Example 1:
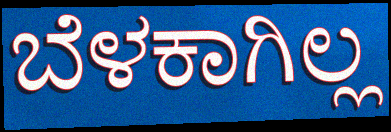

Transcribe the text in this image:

ಬೆಳಕಾಗಿಲ್ಲ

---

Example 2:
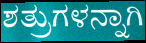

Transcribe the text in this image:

ಶತ್ರುಗಳನ್ನಾಗಿ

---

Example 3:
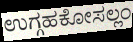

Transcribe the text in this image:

ಉಗ್ಗಹಕೋಸಲ್ಲಂ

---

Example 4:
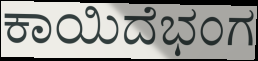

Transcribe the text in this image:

ಕಾಯಿದೆಭಂಗ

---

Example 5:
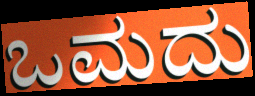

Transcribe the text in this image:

ಒಮದು